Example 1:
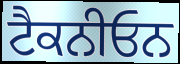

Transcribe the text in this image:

ਟੈਕਨੀਓਨ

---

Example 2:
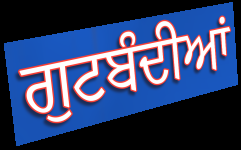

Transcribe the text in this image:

ਗੁਟਬੰਦੀਆਂ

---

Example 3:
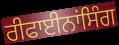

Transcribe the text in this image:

ਰੀਫਾਈਨਾਂਸਿੰਗ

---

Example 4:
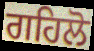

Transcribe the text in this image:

ਗਹਿਲੋ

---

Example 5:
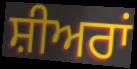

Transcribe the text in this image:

ਸ਼ੀਅਰਾਂ